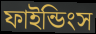
ফাইন্ডিংস